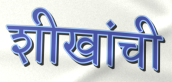
शीखांची